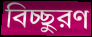
বিচ্ছুরণ